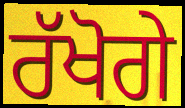
ਰੱਖੋਗੇ